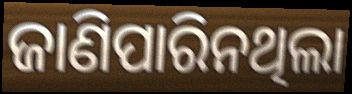
ଜାଣିପାରିନଥିଲା